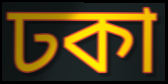
ঢকা